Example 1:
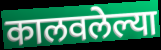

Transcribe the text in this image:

कालवलेल्या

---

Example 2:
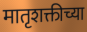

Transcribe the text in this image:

मातृशक्तीच्या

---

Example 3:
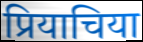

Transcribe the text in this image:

प्रियाचिया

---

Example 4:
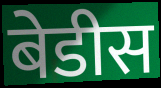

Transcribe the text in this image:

बेडीस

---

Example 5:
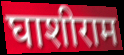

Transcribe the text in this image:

घाशीराम